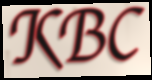
KBC